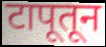
टापूतून